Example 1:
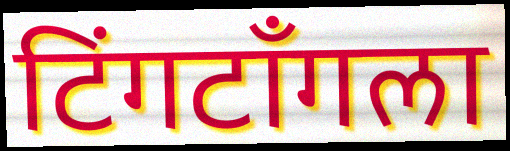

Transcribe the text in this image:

टिंगटॉंगला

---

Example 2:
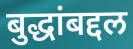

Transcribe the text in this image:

बुद्धांबद्दल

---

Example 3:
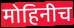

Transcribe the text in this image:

मोहिनीच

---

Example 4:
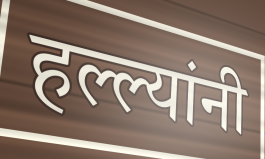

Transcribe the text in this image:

हल्ल्यांनी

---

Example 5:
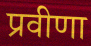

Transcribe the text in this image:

प्रवीणा